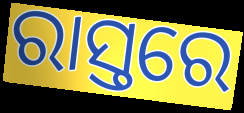
ରାସ୍ତରେ